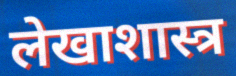
लेखाशास्त्र